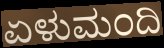
ಏಳುಮಂದಿ